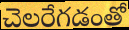
చెలరేగడంతో